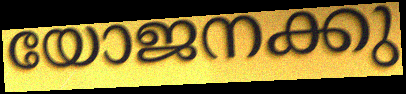
യോജനക്കു